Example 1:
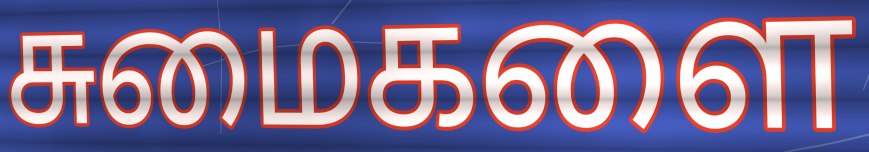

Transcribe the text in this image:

சுமைகளை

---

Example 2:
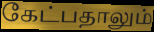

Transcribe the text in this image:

கேட்பதாலும்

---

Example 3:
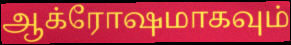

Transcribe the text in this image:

ஆக்ரோஷமாகவும்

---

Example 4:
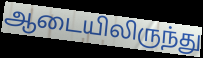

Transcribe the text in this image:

ஆடையிலிருந்து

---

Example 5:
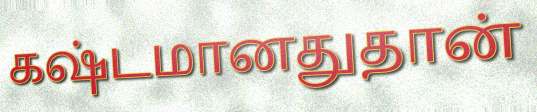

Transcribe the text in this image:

கஷ்டமானதுதான்